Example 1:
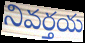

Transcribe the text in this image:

నివర్తయ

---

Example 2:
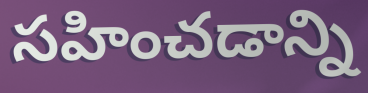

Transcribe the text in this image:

సహించడాన్ని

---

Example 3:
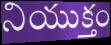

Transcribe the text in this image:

నియుక్తం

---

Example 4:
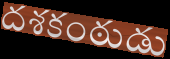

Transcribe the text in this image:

దశకంఠుడు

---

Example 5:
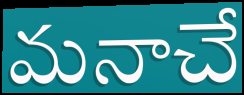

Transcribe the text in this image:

మనాచే